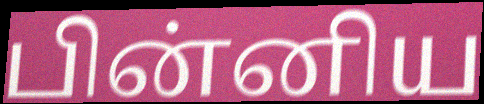
பின்னிய